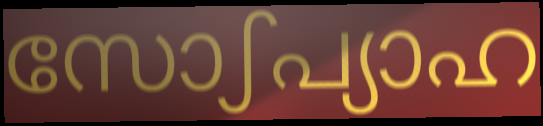
സോഽപ്യാഹ